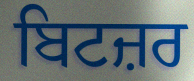
ਬਿਟਜ਼ਰ